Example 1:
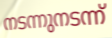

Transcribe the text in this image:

നടന്നുനടന്ന്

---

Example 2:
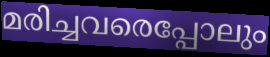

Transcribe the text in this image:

മരിച്ചവരെപ്പോലും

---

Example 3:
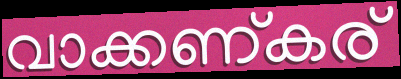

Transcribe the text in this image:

വാക്കണ്കര്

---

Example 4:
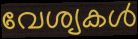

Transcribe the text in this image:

വേശ്യകൾ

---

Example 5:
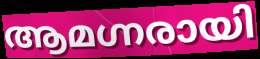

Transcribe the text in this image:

ആമഗ്നരായി